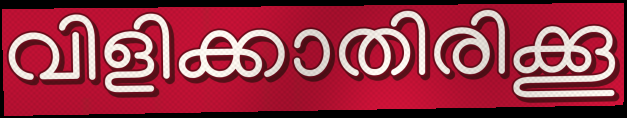
വിളിക്കാതിരിക്കൂ